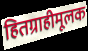
हितग्राहीमूलक